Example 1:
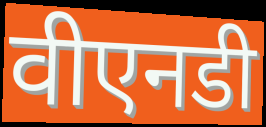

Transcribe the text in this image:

वीएनडी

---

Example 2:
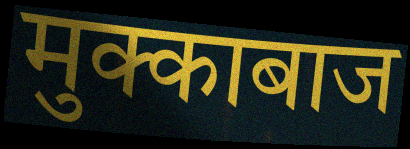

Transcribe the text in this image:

मुक्काबाज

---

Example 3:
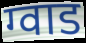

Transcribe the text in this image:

ग्वाड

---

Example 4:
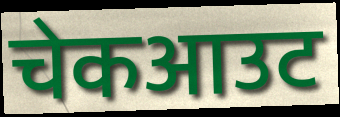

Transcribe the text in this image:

चेकआउट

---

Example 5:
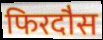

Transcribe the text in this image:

फिरदौस